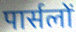
पार्सलों